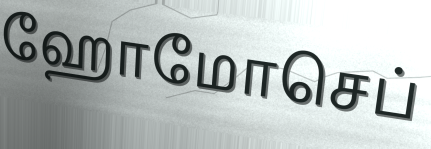
ஹோமோசெப்